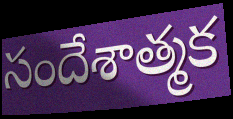
సందేశాత్మక